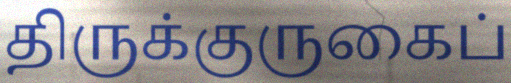
திருக்குருகைப்